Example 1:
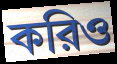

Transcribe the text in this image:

করিও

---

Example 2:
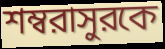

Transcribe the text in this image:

শম্বরাসুরকে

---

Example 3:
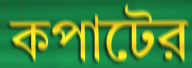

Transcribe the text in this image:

কপাটের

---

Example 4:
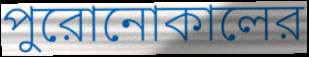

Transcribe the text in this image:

পুরোনোকালের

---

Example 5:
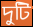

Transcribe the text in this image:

দুটি